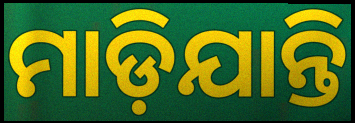
ମାଡ଼ିଯାନ୍ତି